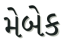
મેબેક